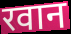
रवान